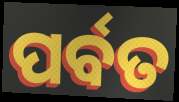
ପର୍ବତ